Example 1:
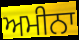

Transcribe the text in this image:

ਅਮੀਨਾ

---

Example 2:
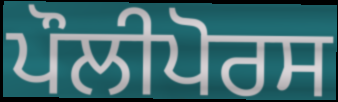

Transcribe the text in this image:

ਪੌਲੀਪੋਰਸ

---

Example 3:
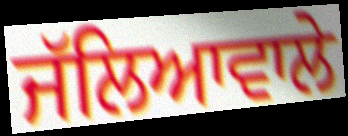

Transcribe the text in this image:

ਜੱਲਿਆਵਾਲੇ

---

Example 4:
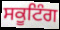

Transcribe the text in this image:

ਸਕੂਟਿੰਗ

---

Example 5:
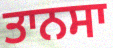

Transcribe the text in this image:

ਤਾਨਸਾ